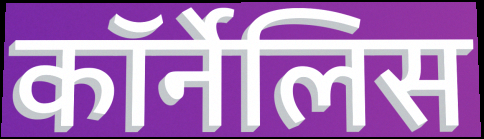
कॉर्नेलिस